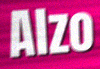
Alzo